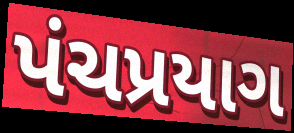
પંચપ્રયાગ